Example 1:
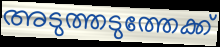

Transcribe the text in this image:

അടുത്തടുത്തേക്ക്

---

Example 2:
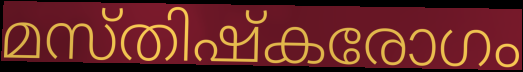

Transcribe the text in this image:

മസ്തിഷ്കരോഗം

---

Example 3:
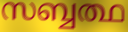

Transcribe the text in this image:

സബ്ബത്ഥ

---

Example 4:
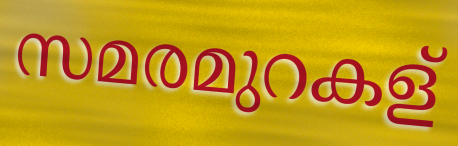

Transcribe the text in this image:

സമരമുറകള്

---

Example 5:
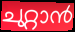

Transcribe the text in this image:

ചുറ്റാൻ